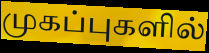
முகப்புகளில்